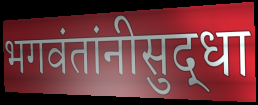
भगवंतांनीसुद्धा